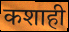
कशाही